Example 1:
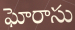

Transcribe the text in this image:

ఘోరాసు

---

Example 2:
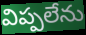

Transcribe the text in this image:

విప్పలేను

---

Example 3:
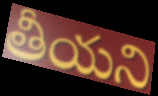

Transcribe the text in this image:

తీయని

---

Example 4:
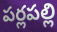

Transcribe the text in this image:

పర్లపల్లి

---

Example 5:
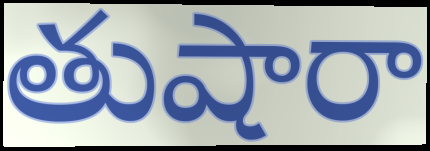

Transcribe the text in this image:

తుషారా